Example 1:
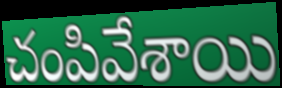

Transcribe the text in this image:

చంపివేశాయి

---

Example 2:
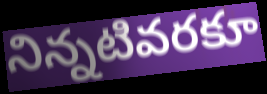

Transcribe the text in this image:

నిన్నటివరకూ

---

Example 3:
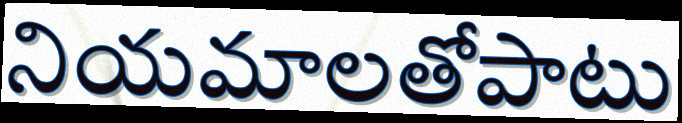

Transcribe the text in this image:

నియమాలతోపాటు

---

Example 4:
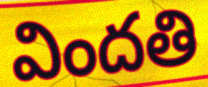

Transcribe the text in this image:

విందతి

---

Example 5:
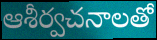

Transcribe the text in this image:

ఆశీర్వచనాలతో